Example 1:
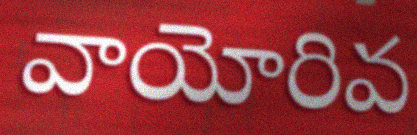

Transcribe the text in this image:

వాయోరివ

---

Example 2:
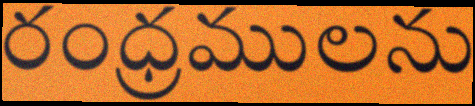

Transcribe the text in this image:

రంధ్రములను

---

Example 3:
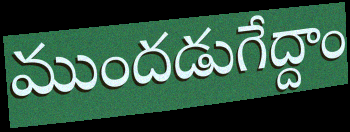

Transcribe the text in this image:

ముందడుగేద్దాం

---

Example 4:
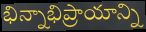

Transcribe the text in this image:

భిన్నాభిప్రాయాన్ని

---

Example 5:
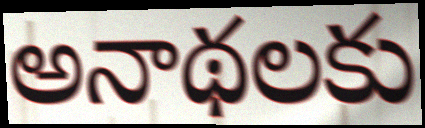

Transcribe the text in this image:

అనాథలకు